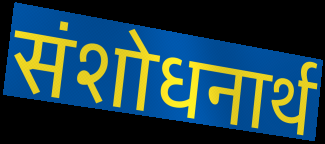
संशोधनार्थ